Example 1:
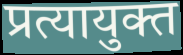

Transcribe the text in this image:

प्रत्यायुक्त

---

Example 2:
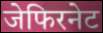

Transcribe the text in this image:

जेफिरनेट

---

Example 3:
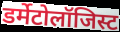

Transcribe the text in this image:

डर्मेटोलॉजिस्ट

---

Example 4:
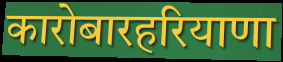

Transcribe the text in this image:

कारोबारहरियाणा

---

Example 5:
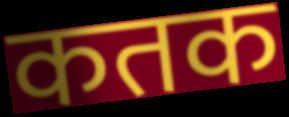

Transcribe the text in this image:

कतक